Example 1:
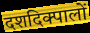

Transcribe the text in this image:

दशदिक्पालों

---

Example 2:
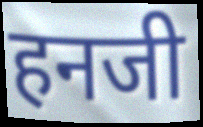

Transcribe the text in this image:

हनजी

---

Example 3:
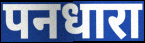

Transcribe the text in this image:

पनधारा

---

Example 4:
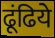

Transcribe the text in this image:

ढूंढिये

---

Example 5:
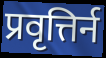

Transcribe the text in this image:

प्रवृत्तिर्न